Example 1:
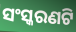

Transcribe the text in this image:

ସଂସ୍କରଣଟି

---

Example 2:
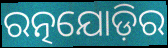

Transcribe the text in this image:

ରତ୍ନଯୋଡ଼ିର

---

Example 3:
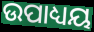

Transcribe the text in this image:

ଉପାଧ୍ୟୟ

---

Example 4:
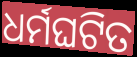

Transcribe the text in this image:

ଧର୍ମଘଟିତ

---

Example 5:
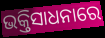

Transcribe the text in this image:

ଭକ୍ତିସାଧନାରେ